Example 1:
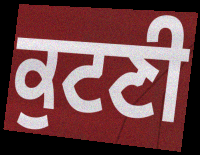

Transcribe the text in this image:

ਕੁਟਣੀ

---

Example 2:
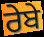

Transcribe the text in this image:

ਰੇਬੇ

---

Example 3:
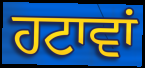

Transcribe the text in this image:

ਹਟਾਵਾਂ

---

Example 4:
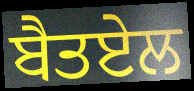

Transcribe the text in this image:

ਬੈਤਏਲ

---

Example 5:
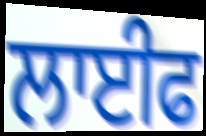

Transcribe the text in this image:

ਲਾਈਫ